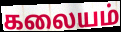
கலையம்